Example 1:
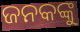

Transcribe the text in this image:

ଜନକଙ୍କୁ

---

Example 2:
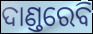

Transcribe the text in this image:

ଦାଣ୍ଡରେବି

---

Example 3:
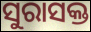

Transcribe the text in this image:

ସୁରାସକ୍ତ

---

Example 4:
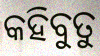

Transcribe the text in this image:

କହିବୁତୁ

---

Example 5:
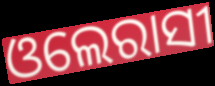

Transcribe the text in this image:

ଓଲେରାସୀ